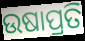
ଉଷାପ୍ରତି